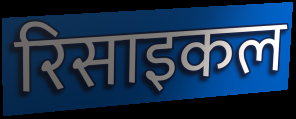
रिसाइकल